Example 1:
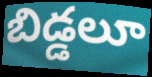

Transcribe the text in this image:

బిడ్డలూ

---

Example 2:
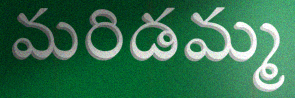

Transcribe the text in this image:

మరిడమ్మ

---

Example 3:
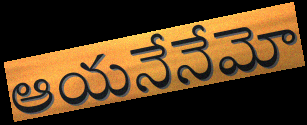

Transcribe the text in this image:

ఆయనేనేమో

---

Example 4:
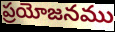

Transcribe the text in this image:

ప్రయోజనము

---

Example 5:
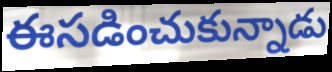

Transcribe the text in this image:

ఈసడించుకున్నాడు